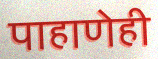
पाहाणेही